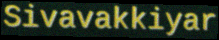
Sivavakkiyar